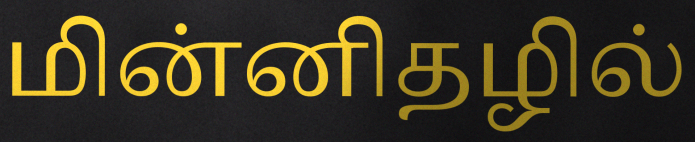
மின்னிதழில்